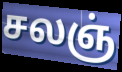
சலஞ்